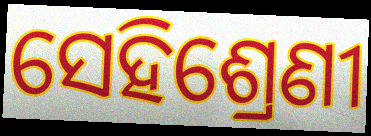
ସେହିଶ୍ରେଣୀ